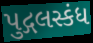
પુદ્ગલસ્કંધ